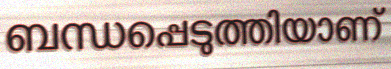
ബന്ധപ്പെടുത്തിയാണ്